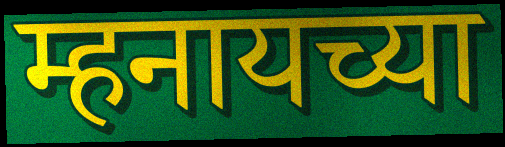
म्हनायच्या